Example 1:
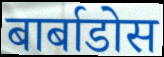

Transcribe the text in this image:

बार्बाडोस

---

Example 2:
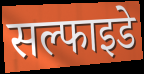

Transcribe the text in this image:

सल्फाइडे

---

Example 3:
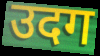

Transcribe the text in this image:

उदग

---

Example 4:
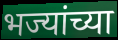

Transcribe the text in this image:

भज्यांच्या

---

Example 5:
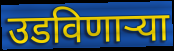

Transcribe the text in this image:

उडविणार्‍या